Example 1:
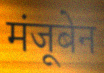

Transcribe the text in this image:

मंजूबेन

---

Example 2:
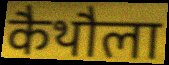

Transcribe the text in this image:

कैथौला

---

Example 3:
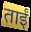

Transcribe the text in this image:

ताईं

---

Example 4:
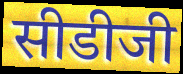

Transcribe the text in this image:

सीडीजी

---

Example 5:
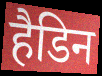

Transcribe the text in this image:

हैडिन